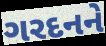
ગરદનને